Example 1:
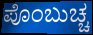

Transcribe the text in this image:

ಪೊಂಬುಚ್ಚ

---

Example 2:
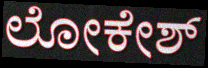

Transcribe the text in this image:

ಲೋಕೇಶ್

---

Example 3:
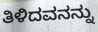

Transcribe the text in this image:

ತಿಳಿದವನನ್ನು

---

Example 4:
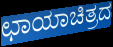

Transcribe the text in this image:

ಛಾಯಾಚಿತ್ರದ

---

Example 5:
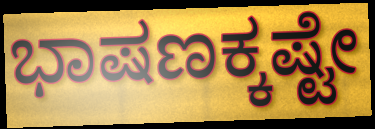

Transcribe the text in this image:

ಭಾಷಣಕ್ಕಷ್ಟೇ